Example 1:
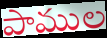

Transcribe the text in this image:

పాముల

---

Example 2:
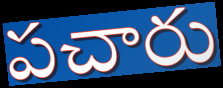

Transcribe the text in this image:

పచారు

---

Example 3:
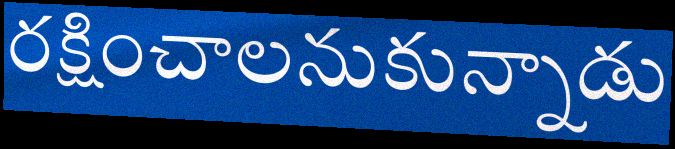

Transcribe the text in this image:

రక్షించాలనుకున్నాడు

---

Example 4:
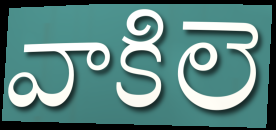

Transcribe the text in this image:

వాకిలె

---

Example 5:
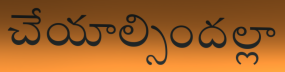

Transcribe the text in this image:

చేయాల్సిందల్లా